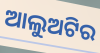
ଆଲୁଅଟିର